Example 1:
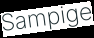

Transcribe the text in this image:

Sampige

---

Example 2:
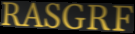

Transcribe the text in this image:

RASGRF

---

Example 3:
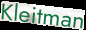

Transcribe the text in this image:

Kleitman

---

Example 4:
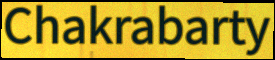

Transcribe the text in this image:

Chakrabarty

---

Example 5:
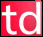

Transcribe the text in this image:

td